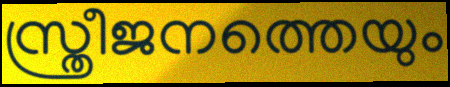
സ്ത്രീജനത്തെയും